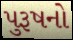
પુરૂષનો